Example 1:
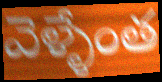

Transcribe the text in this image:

వెళ్ళేంత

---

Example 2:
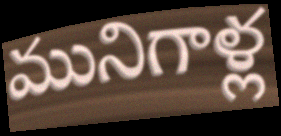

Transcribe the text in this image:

మునిగాళ్ల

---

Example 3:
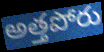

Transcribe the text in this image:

అత్తపోరు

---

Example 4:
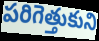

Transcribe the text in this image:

పరిగెత్తుకుని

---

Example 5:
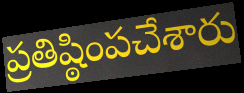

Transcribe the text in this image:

ప్రతిష్ఠింపచేశారు